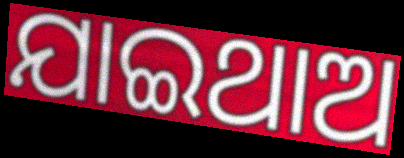
ଯାଇଥାଅ